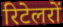
रिटेलरों